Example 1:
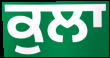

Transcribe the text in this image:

ਕੁਲਾ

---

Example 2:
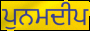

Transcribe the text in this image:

ਪੁਨਮਦੀਪ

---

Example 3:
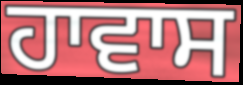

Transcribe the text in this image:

ਹਾਵਾਸ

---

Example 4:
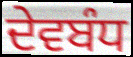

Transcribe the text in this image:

ਦੇਵਬੰਧ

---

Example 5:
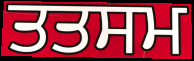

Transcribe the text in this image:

ਤਤਸਮ